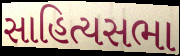
સાહિત્યસભા